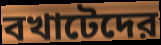
বখাটেদের